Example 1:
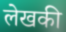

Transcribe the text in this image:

लेखकी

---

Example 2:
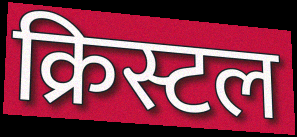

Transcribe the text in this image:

क्रिस्टल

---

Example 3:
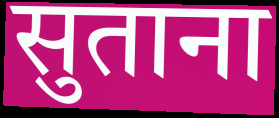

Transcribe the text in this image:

सुताना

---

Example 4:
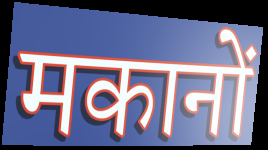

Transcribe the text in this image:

मकानों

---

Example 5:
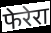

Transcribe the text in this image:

फेरेरा